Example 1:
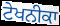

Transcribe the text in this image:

ਟੇਖਨੀਕਾ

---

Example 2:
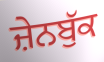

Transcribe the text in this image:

ਜ਼ੇਨਬੁੱਕ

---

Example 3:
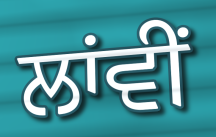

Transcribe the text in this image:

ਲਾਂਵੀਂ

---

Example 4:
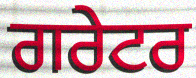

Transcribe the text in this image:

ਗਰੇਟਰ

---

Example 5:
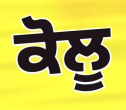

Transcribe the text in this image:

ਕੋਲੂ